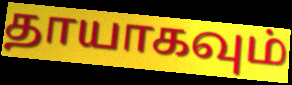
தாயாகவும்